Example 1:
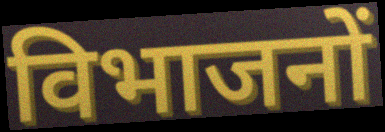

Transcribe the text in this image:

विभाजनों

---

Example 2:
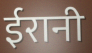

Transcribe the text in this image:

ईरानी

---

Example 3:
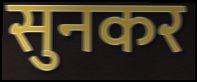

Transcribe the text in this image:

सुनकर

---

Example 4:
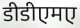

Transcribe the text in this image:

डीडीएमए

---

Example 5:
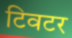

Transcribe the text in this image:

टिवटर